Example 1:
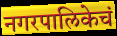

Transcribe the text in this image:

नगरपालिकेचं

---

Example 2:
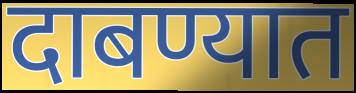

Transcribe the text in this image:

दाबण्यात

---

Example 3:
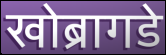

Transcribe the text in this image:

खोब्रागडे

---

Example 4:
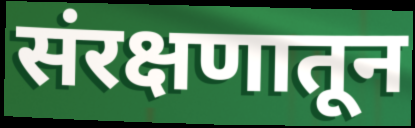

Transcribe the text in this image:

संरक्षणातून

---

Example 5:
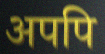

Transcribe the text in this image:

अपपि